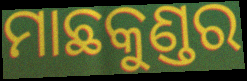
ମାଛକୁଣ୍ଡର